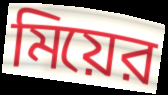
মিয়ের